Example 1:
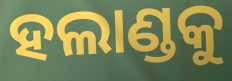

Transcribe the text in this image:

ହଲାଣ୍ଡକୁ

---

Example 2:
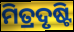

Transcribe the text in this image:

ମିତ୍ରଦୃଷ୍ଟି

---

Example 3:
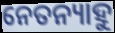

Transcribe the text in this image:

ନେତନ୍ୟାହୁ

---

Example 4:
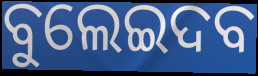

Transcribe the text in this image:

ବୁଲେଇଦବ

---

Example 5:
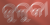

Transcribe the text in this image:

ଜୁଳୁକା